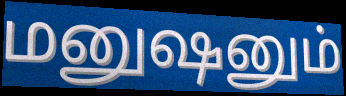
மனுஷனும்